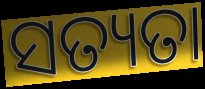
ସତ୍ୟତା